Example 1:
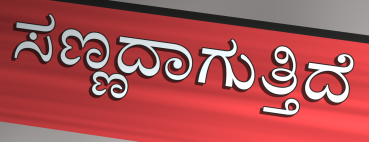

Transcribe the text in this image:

ಸಣ್ಣದಾಗುತ್ತಿದೆ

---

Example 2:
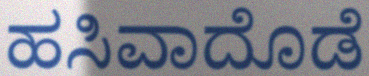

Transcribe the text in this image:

ಹಸಿವಾದೊಡೆ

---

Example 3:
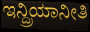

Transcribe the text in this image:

ಇನ್ದ್ರಿಯಾನೀತಿ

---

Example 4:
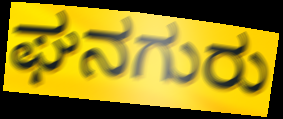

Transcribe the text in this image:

ಘನಗುರು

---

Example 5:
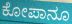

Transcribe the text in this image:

ಕೋಪಾನೂ